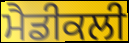
ਮੈਡੀਕਲੀ